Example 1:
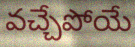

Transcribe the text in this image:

వచ్చేపోయే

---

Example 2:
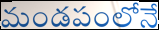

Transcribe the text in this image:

మండపంలోనే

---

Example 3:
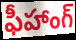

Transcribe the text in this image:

ఫీహాంగ్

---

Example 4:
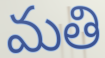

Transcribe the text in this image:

మతి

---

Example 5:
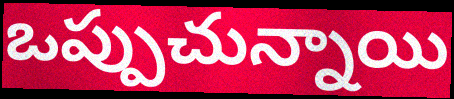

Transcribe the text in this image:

ఒప్పుచున్నాయి